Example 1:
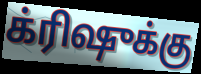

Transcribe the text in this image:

க்ரிஷுக்கு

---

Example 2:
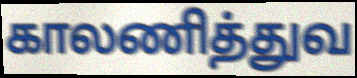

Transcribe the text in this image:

காலணித்துவ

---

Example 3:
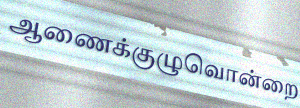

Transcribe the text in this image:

ஆணைக்குழுவொன்றை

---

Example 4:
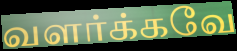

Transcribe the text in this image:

வளர்க்கவே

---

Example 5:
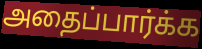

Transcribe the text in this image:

அதைப்பார்க்க